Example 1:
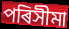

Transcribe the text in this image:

পৰিসীমা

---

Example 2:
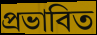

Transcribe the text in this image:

প্ৰভাবিত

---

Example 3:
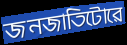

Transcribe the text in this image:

জনজাতিটোৱে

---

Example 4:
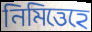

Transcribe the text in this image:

নিমিত্তেহে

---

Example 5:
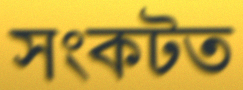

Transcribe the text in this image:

সংকটত